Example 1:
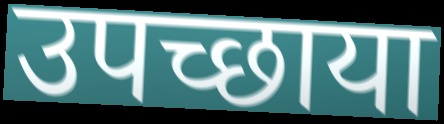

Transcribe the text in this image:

उपच्छाया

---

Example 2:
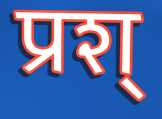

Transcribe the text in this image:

प्रश्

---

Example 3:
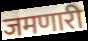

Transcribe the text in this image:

जमणारी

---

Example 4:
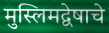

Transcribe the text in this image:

मुस्लिमद्वेषाचे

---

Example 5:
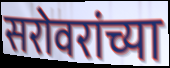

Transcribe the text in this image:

सरोवरांच्या